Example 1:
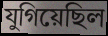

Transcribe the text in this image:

যুগিয়েছিল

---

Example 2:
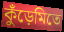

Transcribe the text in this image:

কুঁড়েমিতে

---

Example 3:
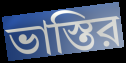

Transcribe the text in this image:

ভাস্তির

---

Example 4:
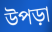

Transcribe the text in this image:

উপড়া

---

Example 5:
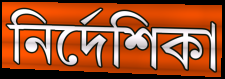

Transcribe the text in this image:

নির্দেশিকা